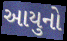
આયુનો